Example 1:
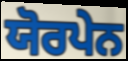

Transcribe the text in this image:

ਯੋਰਪੇਨ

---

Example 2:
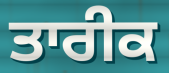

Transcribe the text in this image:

ਤਾਰੀਕ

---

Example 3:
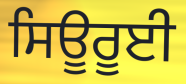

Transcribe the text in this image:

ਸਿਊਰੂਈ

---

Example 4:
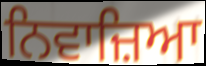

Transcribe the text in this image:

ਨਿਵਾਜ਼ਿਆ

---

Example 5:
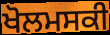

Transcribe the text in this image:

ਖੋਲਮਸਕੀ